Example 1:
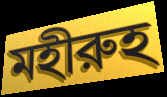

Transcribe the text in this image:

মহীরুহ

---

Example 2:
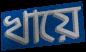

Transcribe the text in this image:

খায়ে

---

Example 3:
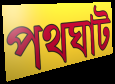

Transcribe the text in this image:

পথঘাট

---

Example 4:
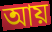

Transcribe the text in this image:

আয়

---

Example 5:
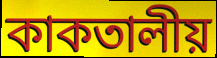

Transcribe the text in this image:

কাকতালীয়